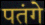
पतंगे